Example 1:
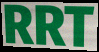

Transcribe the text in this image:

RRT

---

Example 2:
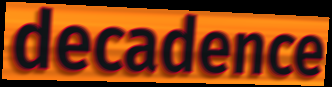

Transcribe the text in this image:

decadence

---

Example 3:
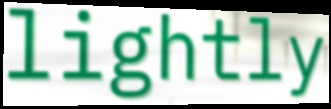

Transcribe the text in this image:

lightly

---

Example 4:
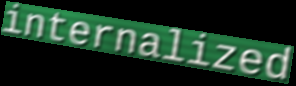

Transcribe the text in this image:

internalized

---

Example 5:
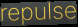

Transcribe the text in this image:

repulse